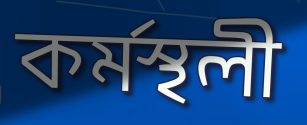
কৰ্মস্থলী